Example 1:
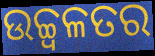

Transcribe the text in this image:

ଉଚ୍ଚ୍ୱଳତର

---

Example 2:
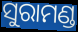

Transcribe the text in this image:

ସୁରାମଣ୍ଡ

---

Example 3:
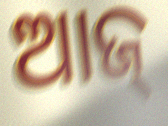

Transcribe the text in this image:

ଆଜ୍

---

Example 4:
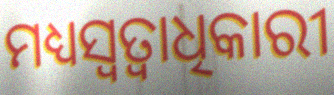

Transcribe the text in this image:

ମଧ୍ୟସ୍ୱତ୍ୱାଧିକାରୀ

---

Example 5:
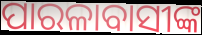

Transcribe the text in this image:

ପାରଳାବାସୀଙ୍କ